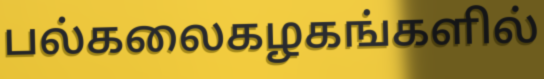
பல்கலைகழகங்களில்